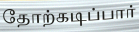
தோற்கடிப்பார்